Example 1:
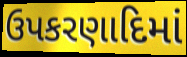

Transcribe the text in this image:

ઉપકરણાદિમાં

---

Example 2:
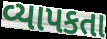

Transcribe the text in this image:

વ્યાપકતા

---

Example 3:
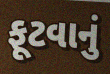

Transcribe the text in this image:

ફૂટવાનું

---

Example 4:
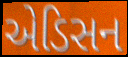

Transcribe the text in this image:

એડિસન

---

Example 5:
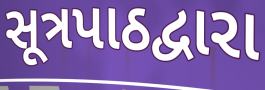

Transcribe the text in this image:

સૂત્રપાઠદ્વારા